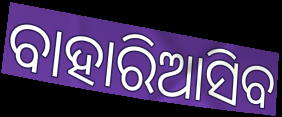
ବାହାରିଆସିବ